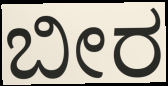
ಬೀರ